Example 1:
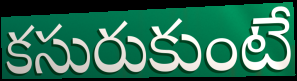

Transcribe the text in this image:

కసురుకుంటే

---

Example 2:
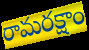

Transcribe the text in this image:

రామరక్షాం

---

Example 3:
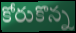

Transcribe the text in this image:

కోరుకొన్న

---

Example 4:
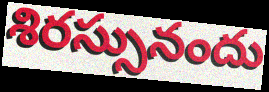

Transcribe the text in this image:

శిరస్సునందు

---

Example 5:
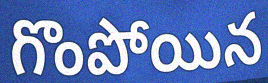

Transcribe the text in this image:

గొంపోయిన